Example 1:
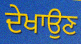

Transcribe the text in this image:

ਦੇਖਾਉਣ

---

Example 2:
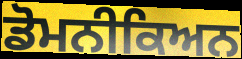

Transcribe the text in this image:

ਡੋਮਨੀਕਿਅਨ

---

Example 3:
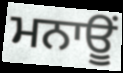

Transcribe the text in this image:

ਮਨਾਊਂ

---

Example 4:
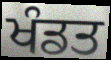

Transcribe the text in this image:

ਖੰਡਤ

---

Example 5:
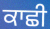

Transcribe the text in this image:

ਕਾਛੀ